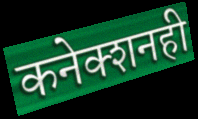
कनेक्शनही